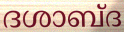
ദശാബ്ദ